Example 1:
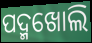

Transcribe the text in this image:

ପଦ୍ମଖୋଲି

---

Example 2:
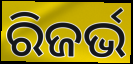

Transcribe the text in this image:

ରିଜର୍ଭ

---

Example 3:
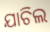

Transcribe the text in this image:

ଯାଚିଲ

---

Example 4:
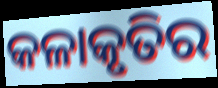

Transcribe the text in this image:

କଳାକୃତିର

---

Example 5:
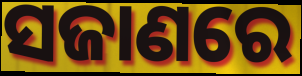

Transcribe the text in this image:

ସଜାଣରେ